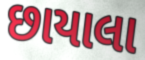
છાયાલા